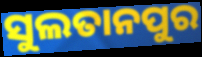
ସୁଲତାନପୁର